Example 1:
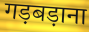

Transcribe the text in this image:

गड़बड़ाना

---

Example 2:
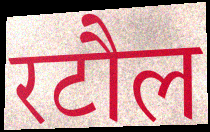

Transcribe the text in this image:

रटौल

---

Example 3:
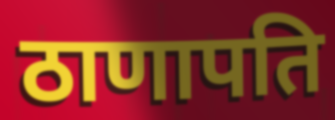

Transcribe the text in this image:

ठाणापति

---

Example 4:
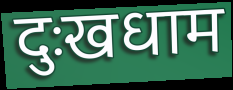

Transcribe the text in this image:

दुःखधाम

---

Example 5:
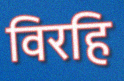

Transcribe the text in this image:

विरहि